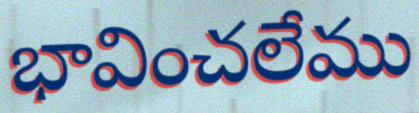
భావించలేము